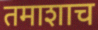
तमाशाच